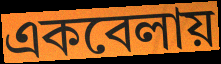
একবেলায়